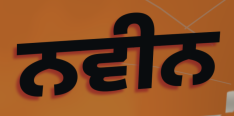
ਨਵੀਨ